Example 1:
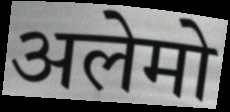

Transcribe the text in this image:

अलेमो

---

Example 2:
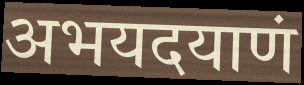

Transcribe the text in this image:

अभयदयाणं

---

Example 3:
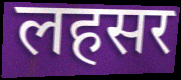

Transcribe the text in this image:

लहसर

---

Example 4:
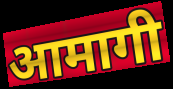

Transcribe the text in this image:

आमागी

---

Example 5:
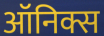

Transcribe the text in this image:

ऑनिक्स